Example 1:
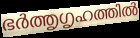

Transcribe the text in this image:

ഭർത്തൃഗൃഹത്തിൽ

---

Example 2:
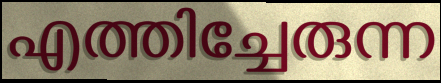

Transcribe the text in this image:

എത്തിച്ചേരുന്ന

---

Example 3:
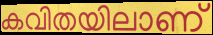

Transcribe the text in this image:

കവിതയിലാണ്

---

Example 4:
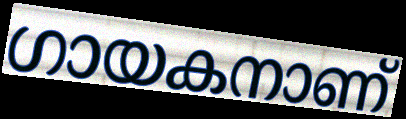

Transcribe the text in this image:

ഗായകനാണ്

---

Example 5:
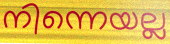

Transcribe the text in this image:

നിന്നെയല്ല